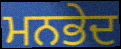
ਮਨਭੇਦ